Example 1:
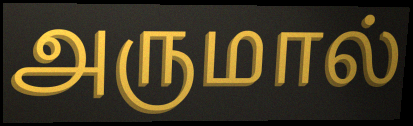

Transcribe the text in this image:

அருமால்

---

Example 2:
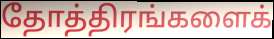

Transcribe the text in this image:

தோத்திரங்களைக்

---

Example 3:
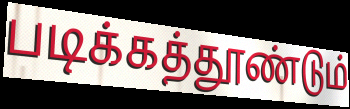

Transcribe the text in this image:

படிக்கத்தூண்டும்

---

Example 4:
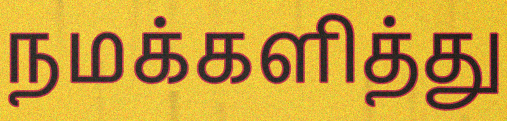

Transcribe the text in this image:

நமக்களித்து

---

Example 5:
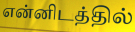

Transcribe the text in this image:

என்னிடத்தில்